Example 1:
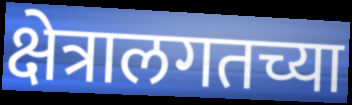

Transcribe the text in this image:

क्षेत्रालगतच्या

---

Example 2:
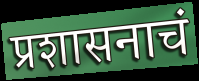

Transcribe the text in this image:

प्रशासनाचं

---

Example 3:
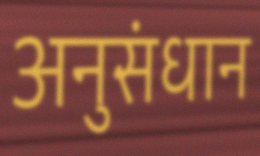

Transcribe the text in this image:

अनुसंधान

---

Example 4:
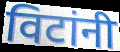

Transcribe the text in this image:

विटांनी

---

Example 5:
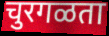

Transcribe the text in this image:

चुरगळता